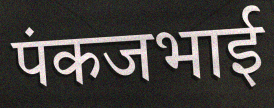
पंकजभाई